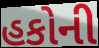
હકોની